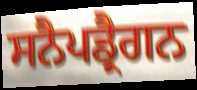
ਸਨੈਪਡ੍ਰੈਗਨ